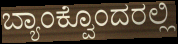
ಬ್ಯಾಂಕ್ವೊಂದರಲ್ಲಿ